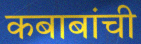
कबाबांची